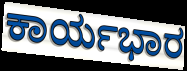
ಕಾರ್ಯಭಾರ